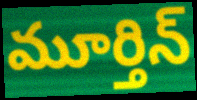
మూర్తిన్